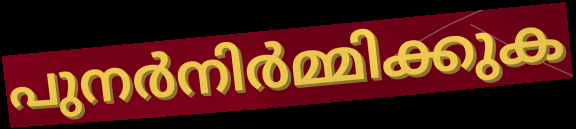
പുനർനിർമ്മിക്കുക